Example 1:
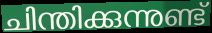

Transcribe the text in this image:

ചിന്തിക്കുന്നുണ്ട്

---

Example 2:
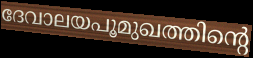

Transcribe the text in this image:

ദേവാലയപൂമുഖത്തിന്റെ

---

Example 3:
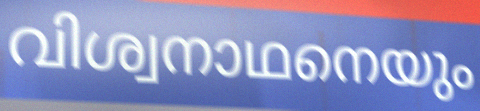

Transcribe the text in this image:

വിശ്വനാഥനെയും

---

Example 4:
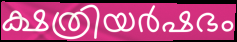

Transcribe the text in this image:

ക്ഷത്രിയർഷഭം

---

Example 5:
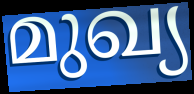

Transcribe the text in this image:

മുഖ്യ